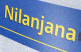
Nilanjana